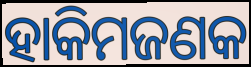
ହାକିମଜଣକ